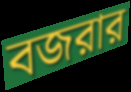
বজরার